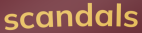
scandals